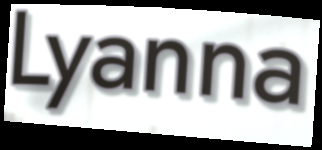
Lyanna